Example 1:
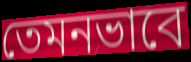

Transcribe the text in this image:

তেমনভাবে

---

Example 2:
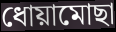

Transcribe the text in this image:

ধোয়ামোছা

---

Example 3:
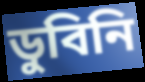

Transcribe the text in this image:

ডুবিনি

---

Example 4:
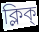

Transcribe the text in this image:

ক্লিক্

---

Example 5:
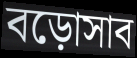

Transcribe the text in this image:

বড়োসাব